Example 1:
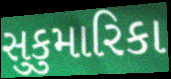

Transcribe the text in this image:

સુકુમારિકા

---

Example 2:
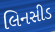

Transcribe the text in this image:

લિનસીડ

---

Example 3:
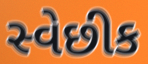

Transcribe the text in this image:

સ્વેછીક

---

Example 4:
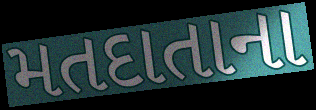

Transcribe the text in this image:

મતદાતાના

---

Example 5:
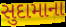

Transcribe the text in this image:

સુદામાના